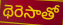
థెరెసాతో